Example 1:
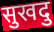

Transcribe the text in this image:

सुखदु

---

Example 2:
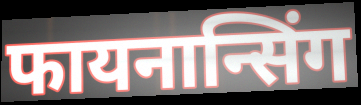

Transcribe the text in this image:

फायनान्सिंग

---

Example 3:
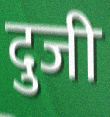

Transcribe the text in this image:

दुजी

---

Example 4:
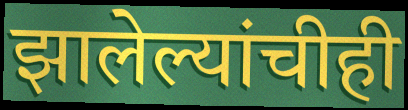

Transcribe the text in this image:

झालेल्यांचीही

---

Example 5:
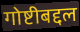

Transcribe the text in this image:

गोष्टीबद्दल